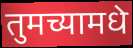
तुमच्यामधे